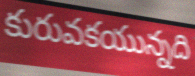
కురువకయున్నది